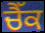
ਚੈੱਕ